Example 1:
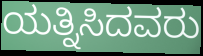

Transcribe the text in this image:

ಯತ್ನಿಸಿದವರು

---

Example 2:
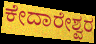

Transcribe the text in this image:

ಕೇದಾರೇಶ್ವರ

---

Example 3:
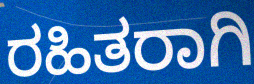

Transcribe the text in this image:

ರಹಿತರಾಗಿ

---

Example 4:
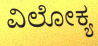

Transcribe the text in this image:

ವಿಲೋಕ್ಯ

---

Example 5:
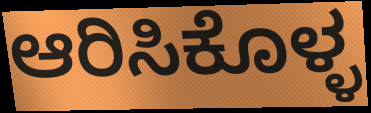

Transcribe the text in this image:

ಆರಿಸಿಕೊಳ್ಳ